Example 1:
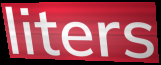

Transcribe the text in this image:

liters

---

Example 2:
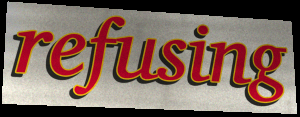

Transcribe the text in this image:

refusing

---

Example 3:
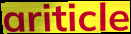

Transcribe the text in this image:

ariticle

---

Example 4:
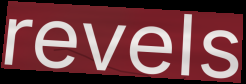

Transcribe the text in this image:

revels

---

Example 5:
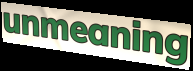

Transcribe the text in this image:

unmeaning